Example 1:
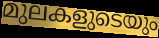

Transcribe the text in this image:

മുലകളുടെയും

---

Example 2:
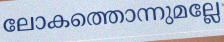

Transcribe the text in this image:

ലോകത്തൊന്നുമല്ലേ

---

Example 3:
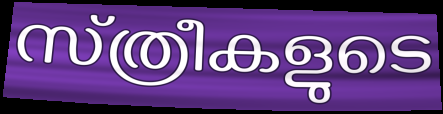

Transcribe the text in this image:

സ്‌ത്രീകളുടെ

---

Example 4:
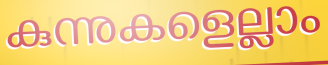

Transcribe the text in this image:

കുന്നുകളെല്ലാം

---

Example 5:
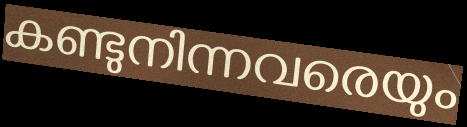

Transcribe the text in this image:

കണ്ടുനിന്നവരെയും